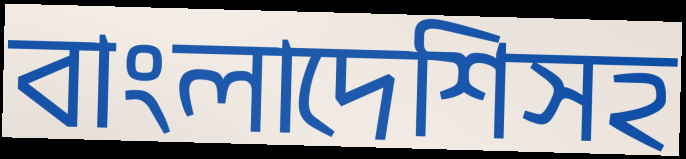
বাংলাদেশিসহ